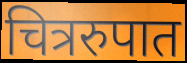
चित्ररुपात